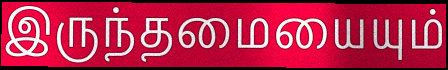
இருந்தமையையும்